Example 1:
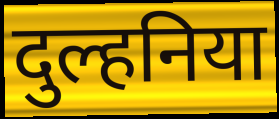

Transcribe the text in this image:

दुल्हनिया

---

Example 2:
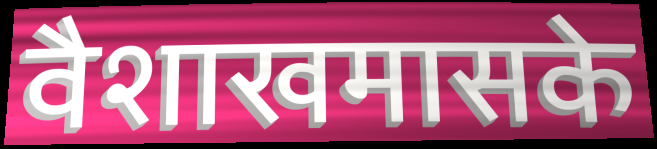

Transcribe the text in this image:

वैशाखमासके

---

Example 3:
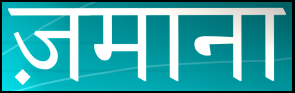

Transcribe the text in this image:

ज़माना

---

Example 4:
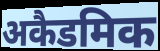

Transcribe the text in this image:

अकैडमिक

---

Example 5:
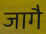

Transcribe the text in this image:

जागै